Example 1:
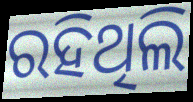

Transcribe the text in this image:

ରହିଥିଲି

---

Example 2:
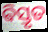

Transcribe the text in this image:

ଵିସ୍ତୃତ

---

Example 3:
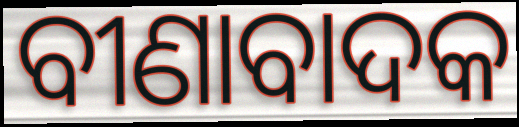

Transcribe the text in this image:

ବୀଣାବାଦକ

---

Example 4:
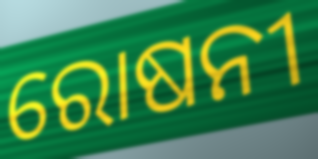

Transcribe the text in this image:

ରୋଷନୀ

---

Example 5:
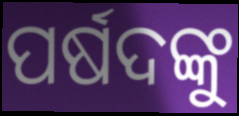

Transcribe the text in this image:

ପର୍ଷଦଙ୍କୁ